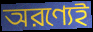
অরণ্যেই